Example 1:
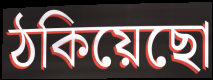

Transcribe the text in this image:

ঠকিয়েছো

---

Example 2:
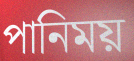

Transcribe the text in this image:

পানিময়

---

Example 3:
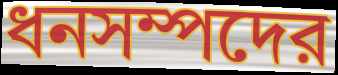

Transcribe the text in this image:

ধনসম্পদের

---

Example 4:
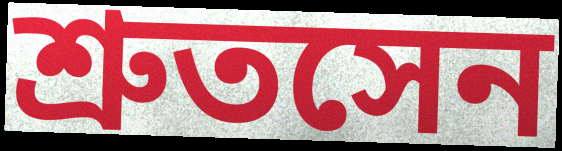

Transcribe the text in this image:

শ্রুতসেন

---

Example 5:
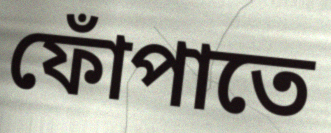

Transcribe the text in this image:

ফোঁপাতে